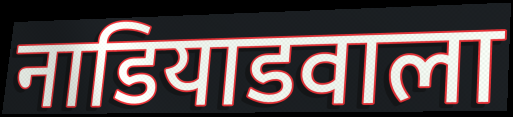
नाडियाडवाला